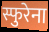
स्फुरेना